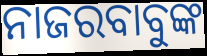
ନାଜରବାବୁଙ୍କ